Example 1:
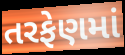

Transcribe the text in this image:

તરફેણમાં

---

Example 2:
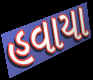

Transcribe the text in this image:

હવાયા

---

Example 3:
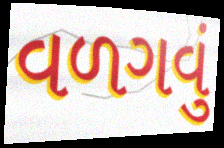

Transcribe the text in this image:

વળગવું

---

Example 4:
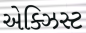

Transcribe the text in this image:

એક્ઝિસ્ટ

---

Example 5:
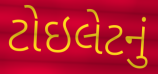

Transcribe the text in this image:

ટોઇલેટનું